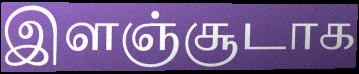
இளஞ்சூடாக